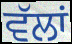
ਵੱਲਾਂ